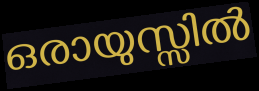
ഒരായുസ്സിൽ